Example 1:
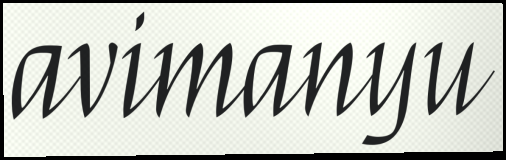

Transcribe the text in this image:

avimanyu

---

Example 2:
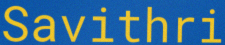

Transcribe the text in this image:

Savithri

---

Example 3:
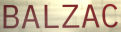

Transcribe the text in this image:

BALZAC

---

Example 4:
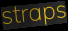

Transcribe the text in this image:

straps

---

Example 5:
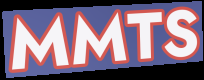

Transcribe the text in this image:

MMTS